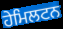
ਹੇਮਿਲਟਨ